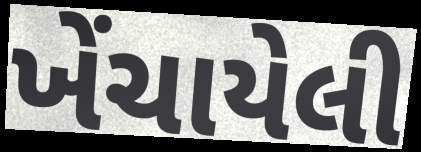
ખેંચાયેલી